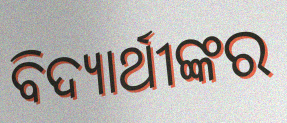
ବିଦ୍ୟାର୍ଥୀଙ୍କର